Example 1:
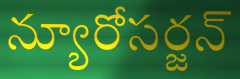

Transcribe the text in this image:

న్యూరోసర్జన్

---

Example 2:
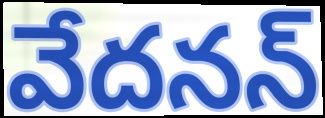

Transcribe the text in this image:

వేదనన్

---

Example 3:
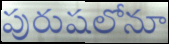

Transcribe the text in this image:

పురుషలోనూ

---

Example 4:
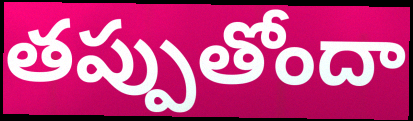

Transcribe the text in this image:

తప్పుతోందా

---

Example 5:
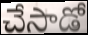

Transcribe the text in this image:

చేసాడో